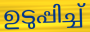
ഉടുപ്പിച്ച്